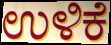
ಉಳಿಕೆ